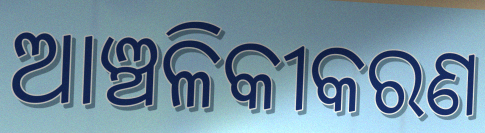
ଆଞ୍ଚଳିକୀକରଣ